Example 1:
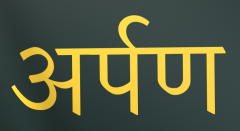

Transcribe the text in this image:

अर्पण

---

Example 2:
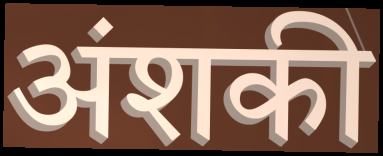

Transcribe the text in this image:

अंशकी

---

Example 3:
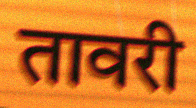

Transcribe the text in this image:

तावरी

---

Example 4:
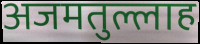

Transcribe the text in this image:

अजमतुल्लाह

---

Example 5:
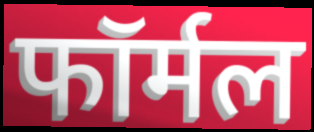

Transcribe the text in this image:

फॉर्मल